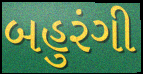
બહુરંગી